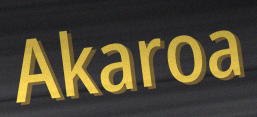
Akaroa